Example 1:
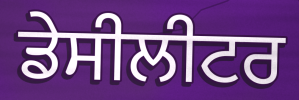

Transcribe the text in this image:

ਡੇਸੀਲੀਟਰ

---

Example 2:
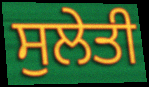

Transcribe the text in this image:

ਸੁਲੇਤੀ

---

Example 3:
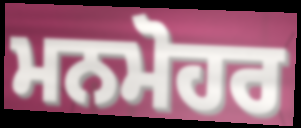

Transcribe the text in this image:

ਮਨਮੋਹਰ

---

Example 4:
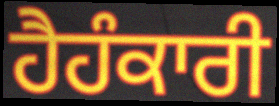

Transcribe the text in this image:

ਹੈਹੰਕਾਰੀ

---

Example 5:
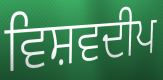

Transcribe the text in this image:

ਵਿਸ਼ਵਦੀਪ